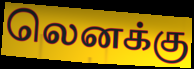
லெனக்கு